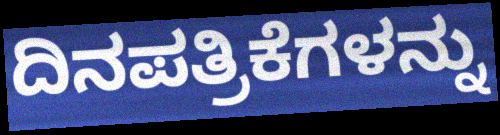
ದಿನಪತ್ರಿಕೆಗಳನ್ನು